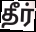
தீர்